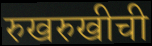
रुखरुखीची